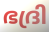
ഭദ്രി